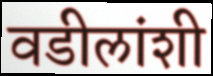
वडीलांशी